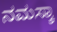
ನಮಸ್ಕಾ